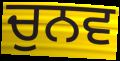
ਚੁਨਵ